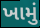
ખામું